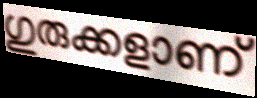
ഗുരുക്കളാണ്